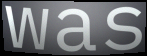
was